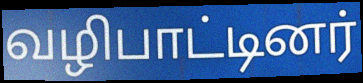
வழிபாட்டினர்